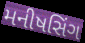
મનીષસિંગ